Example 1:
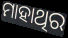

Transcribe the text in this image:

ମାହାଥିର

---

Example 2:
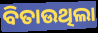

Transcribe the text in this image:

ବିତାଉଥିଲା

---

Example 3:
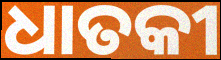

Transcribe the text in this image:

ଧାତକୀ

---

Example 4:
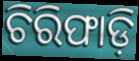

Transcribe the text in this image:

ଚିରିଫାଡ଼ି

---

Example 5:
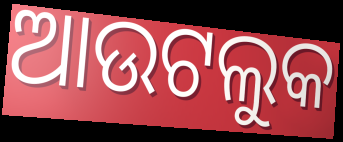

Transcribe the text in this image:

ଆଉଟଲୁକ